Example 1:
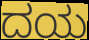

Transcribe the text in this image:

ದಯ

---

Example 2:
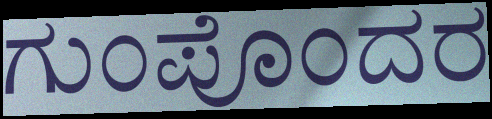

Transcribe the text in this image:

ಗುಂಪೊಂದರ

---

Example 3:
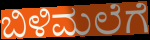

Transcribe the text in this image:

ಬಿಳಿಮಲೆಗೆ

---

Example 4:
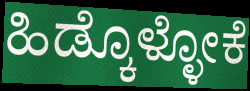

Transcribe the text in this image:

ಹಿಡ್ಕೊಳ್ಳೋಕೆ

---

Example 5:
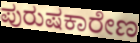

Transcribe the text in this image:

ಪುರುಷಕಾರೇಣ